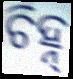
ଚିହ୍ନ୍